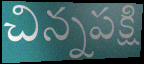
చిన్నపక్షి